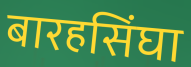
बारहसिंघा